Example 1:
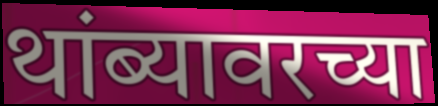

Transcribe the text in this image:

थांब्यावरच्या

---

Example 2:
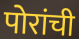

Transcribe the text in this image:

पोरांची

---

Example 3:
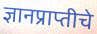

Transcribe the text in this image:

ज्ञानप्राप्तीचे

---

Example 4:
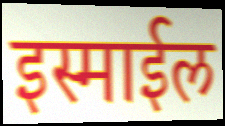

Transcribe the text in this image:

इस्माईल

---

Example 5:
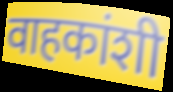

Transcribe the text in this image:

वाहकांशी